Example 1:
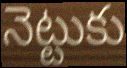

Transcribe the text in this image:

నెట్టుకు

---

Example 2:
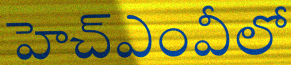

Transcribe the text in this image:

హెచ్ఎంవీలో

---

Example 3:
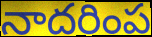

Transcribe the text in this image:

నాదరింప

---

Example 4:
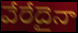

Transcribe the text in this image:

వేరేదైనా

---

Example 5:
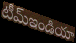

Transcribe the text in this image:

టీమ్ఇండియా